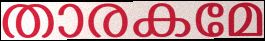
താരകമേ